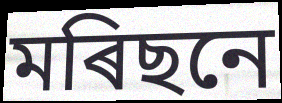
মৰিছনে